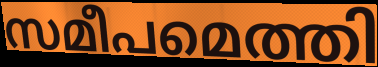
സമീപമെത്തി